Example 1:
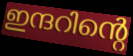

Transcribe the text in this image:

ഇന്ദറിന്റെ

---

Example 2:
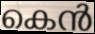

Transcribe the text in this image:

കെൻ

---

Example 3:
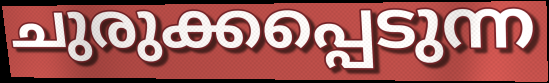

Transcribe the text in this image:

ചുരുക്കപ്പെടുന്ന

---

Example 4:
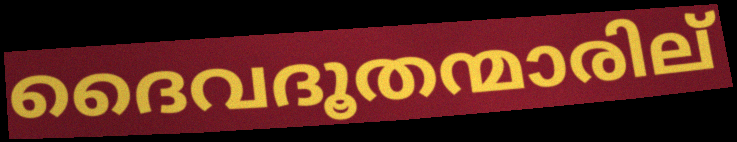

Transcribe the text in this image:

ദൈവദൂതന്മാരില്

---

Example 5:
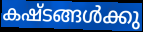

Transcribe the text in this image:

കഷ്ടങ്ങൾക്കു